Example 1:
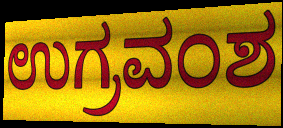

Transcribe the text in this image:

ಉಗ್ರವಂಶ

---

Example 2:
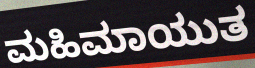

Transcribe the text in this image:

ಮಹಿಮಾಯುತ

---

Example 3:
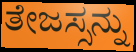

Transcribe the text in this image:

ತೇಜಸ್ಸನ್ನು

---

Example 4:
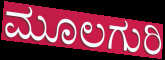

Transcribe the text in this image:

ಮೂಲಗುರಿ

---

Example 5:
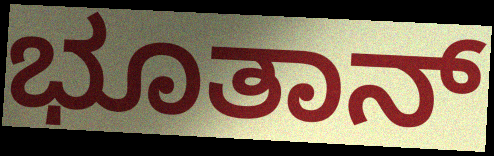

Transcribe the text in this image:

ಭೂತಾನ್